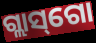
ଗ୍ଲାସ୍‌ଗୋ